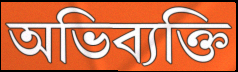
অভিব্যক্তি